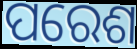
ପରେଶ